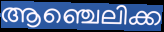
ആഞ്ചെലിക്ക